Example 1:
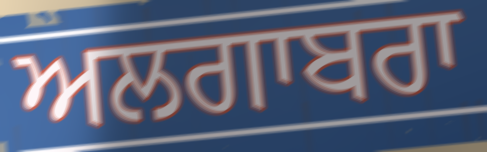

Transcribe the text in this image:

ਅਲਗਾਬਰਾ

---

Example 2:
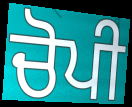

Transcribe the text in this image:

ਚੋਪੀ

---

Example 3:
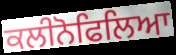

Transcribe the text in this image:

ਕਲੀਨੋਫਿਲਿਆ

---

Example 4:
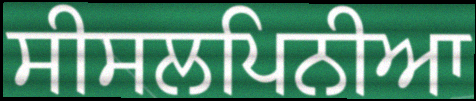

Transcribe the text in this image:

ਸੀਸਲਪਿਨੀਆ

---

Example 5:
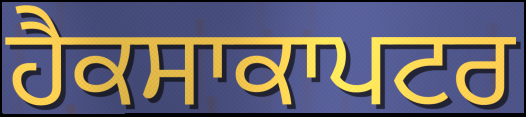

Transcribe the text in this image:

ਹੈਕਸਾਕਾਪਟਰ